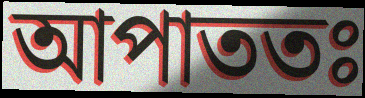
আপাততঃ